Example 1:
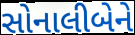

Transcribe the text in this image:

સોનાલીબેને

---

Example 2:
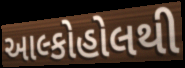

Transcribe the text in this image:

આલ્કોહોલથી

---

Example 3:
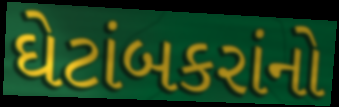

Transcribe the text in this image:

ઘેટાંબકરાંનો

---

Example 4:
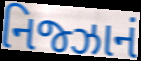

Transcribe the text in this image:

નિજ્ઝાનં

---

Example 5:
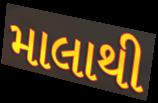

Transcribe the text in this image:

માલાથી